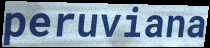
peruviana